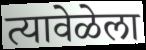
त्यावेळेला